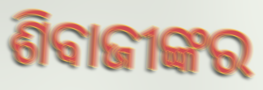
ଶିବାଜୀଙ୍କର